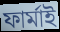
ফাৰ্মাই